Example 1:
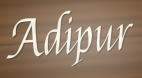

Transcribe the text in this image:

Adipur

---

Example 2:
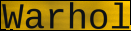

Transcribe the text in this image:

Warhol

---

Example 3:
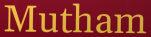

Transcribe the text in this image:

Mutham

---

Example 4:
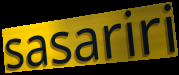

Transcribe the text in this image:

sasariri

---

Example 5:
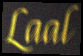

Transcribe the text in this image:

Laal